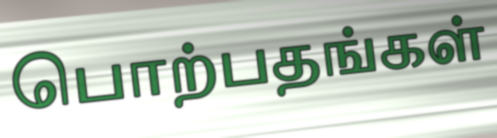
பொற்பதங்கள்